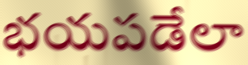
భయపడేలా